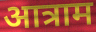
आत्राम